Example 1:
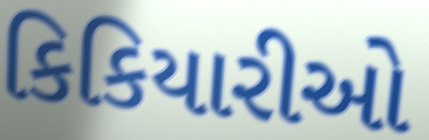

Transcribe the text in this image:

કિકિયારીઓ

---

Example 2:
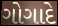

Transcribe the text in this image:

ગોગાદે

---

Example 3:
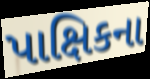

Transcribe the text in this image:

પાક્ષિકના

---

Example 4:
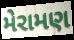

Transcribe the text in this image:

મેરામણ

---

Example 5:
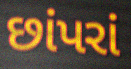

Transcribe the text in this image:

છાંપરાં